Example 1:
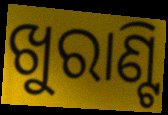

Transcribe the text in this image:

ଖୁରାଣ୍ଟି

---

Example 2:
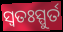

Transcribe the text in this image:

ସ୍ୱତଃସ୍ପୁର୍ତ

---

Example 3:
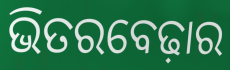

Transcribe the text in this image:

ଭିତରବେଢ଼ାର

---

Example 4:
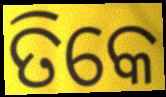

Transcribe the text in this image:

ତିକେ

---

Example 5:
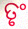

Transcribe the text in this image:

ତୃଂ